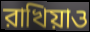
রাখিয়াও